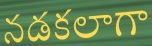
నడకలాగా